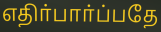
எதிர்பார்ப்பதே